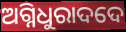
ଅଗ୍ନିଧୁରାଦଦେ